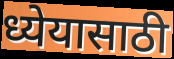
ध्येयासाठी